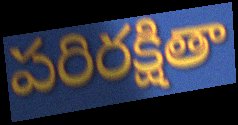
పరిరక్షితా